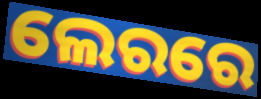
ଲେରରେ